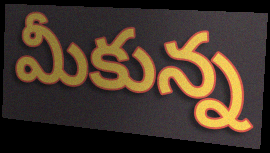
మీకున్న